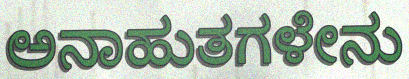
ಅನಾಹುತಗಳೇನು